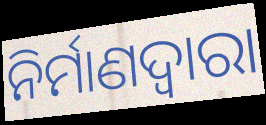
ନିର୍ମାଣଦ୍ୱାରା